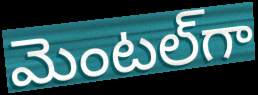
మెంటల్‌గా